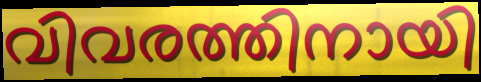
വിവരത്തിനായി